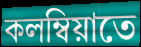
কলম্বিয়াতে